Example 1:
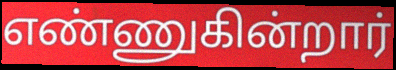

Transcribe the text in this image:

எண்ணுகின்றார்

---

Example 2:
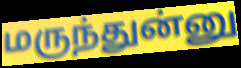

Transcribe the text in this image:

மருந்துன்னு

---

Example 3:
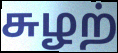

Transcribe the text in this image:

சுழற்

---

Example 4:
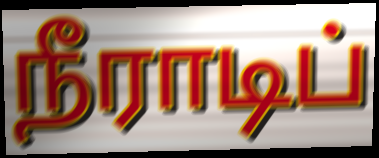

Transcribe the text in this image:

நீராடிப்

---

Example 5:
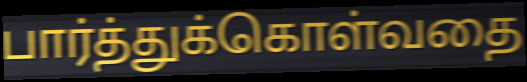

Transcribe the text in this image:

பார்த்துக்கொள்வதை